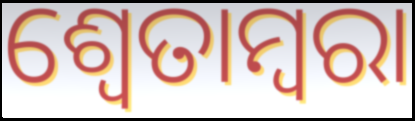
ଶ୍ୱେତାମ୍ବରା